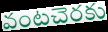
వంటచెరకు